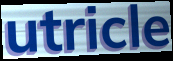
utricle